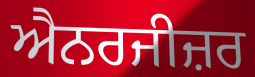
ਐਨਰਜੀਜ਼ਰ